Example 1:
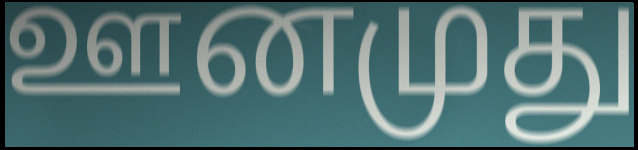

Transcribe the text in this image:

ஊனமுது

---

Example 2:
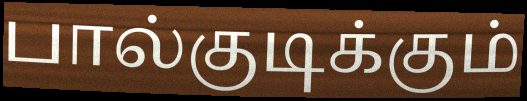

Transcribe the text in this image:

பால்குடிக்கும்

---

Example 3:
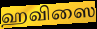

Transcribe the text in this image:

ஹவிஸை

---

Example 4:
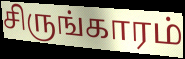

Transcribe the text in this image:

சிருங்காரம்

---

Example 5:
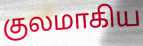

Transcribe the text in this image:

குலமாகிய